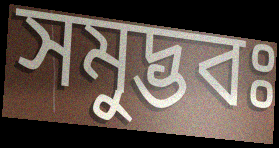
সমুদ্ভবঃ